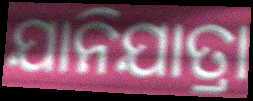
ଯାନିଯାତ୍ରା